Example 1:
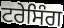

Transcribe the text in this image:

ਟਰੇਸਿੰਗ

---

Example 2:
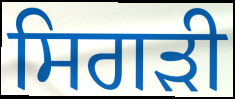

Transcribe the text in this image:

ਸਿਗੜੀ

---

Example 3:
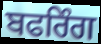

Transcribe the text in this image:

ਬਫਰਿੰਗ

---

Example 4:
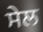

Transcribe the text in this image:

ਸੇਲ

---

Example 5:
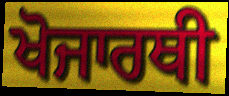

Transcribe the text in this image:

ਖੋਜਾਰਥੀ